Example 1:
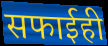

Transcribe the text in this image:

सफाईही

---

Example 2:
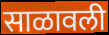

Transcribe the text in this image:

साळावली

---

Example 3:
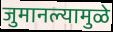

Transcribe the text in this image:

जुमानल्यामुळे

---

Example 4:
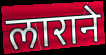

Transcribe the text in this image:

लाराने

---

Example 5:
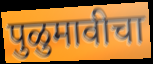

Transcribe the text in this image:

पुळुमावीचा